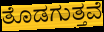
ತೊಡಗುತ್ತವೆ